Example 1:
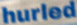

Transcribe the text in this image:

hurled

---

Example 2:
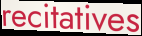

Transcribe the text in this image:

recitatives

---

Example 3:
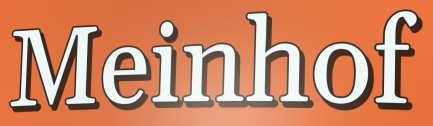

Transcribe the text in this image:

Meinhof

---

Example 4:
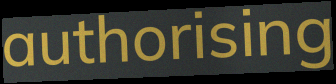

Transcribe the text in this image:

authorising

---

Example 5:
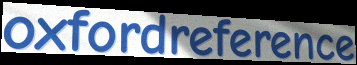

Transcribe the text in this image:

oxfordreference